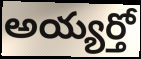
అయ్యర్తో